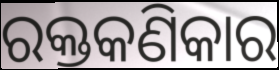
ରକ୍ତକଣିକାର